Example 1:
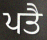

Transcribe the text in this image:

ਪਤੈ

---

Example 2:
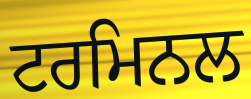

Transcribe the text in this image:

ਟਰਮਿਨਲ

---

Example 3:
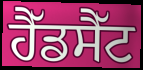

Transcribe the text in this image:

ਹੈੱਡਸੈੱਟ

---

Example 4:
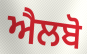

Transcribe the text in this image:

ਐਲਬੋ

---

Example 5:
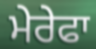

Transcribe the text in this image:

ਮੇਰੇਫਾ